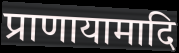
प्राणायामादि